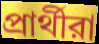
প্রার্থীরা